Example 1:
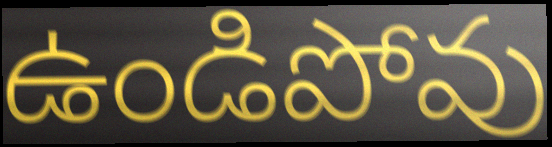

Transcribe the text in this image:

ఉండిపోవు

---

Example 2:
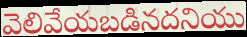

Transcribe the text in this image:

వెలివేయబడినదనియు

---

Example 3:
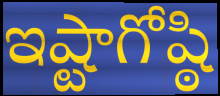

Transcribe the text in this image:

ఇష్టాగోష్ఠి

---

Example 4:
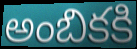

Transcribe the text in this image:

అంబికకి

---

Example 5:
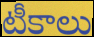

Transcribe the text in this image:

టీకాలు